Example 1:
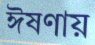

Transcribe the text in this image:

ঈষণায়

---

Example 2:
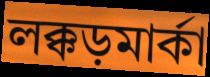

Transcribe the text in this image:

লক্কড়মার্কা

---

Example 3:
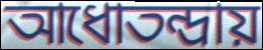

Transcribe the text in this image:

আধোতন্দ্রায়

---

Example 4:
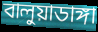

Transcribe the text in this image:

বালুয়াডাঙ্গা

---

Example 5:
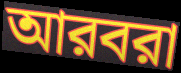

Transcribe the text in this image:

আরবরা